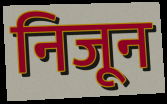
निजून